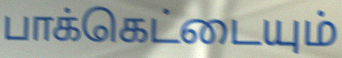
பாக்கெட்டையும்